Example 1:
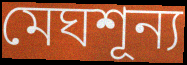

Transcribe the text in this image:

মেঘশূন্য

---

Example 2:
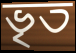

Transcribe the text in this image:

ভৃত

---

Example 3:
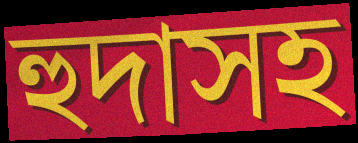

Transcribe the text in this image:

হুদাসহ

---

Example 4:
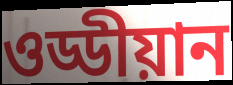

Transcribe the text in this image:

ওড্ডীয়ান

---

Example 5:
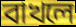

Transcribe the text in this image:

বাখলে